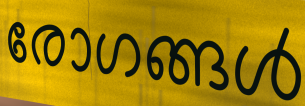
രോഗങ്ങൾ